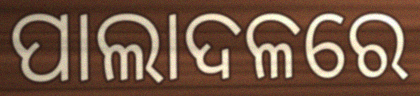
ପାଲାଦଳରେ